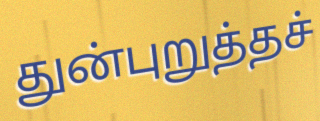
துன்புறுத்தச்